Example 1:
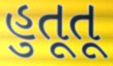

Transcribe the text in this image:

હુતૂતૂ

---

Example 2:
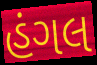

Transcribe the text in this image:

હંગલ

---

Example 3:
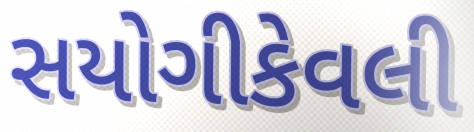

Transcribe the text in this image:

સયોગીકેવલી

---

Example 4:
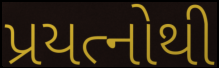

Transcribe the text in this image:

પ્રયત્નોથી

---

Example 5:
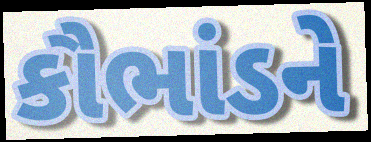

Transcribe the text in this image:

કૌભાંડને